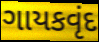
ગાયકવૃંદ